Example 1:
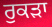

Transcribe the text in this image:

ਰੁਕੜਾ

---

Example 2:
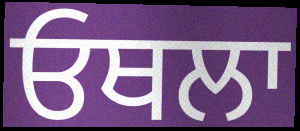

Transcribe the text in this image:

ਓਥਲਾ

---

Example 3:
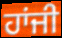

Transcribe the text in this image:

ਹਾਂਜੀ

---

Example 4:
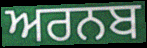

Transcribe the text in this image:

ਅਰਨਬ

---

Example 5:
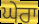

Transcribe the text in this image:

ਘੇਰਾ